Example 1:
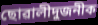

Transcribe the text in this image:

ছোৱালীদুজনীক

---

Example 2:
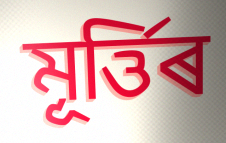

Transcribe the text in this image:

মূৰ্ত্তিৰ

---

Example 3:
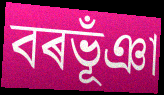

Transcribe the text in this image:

বৰভূঁঞা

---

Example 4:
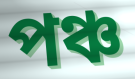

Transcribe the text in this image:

পঞ্চ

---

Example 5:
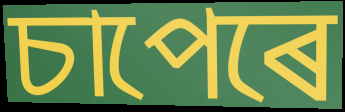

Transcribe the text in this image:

চাপেৰে